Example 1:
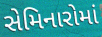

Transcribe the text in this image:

સેમિનારોમાં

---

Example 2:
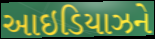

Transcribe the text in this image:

આઇડિયાઝને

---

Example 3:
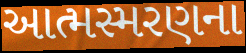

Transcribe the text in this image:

આત્મસ્મરણના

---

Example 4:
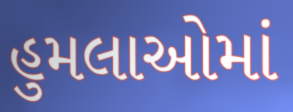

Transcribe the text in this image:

હુમલાઓમાં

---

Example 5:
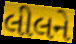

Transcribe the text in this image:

લીલને